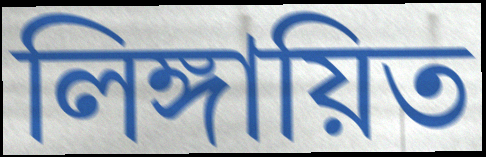
লিঙ্গায়িত